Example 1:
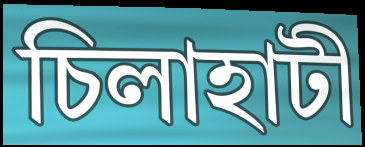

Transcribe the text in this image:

চিলাহাটী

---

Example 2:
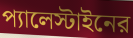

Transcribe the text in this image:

প্যালেস্টাইনের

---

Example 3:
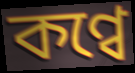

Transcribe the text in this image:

কণ্বে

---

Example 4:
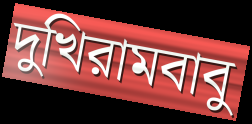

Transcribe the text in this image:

দুখিরামবাবু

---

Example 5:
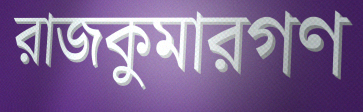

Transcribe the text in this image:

রাজকুমারগণ